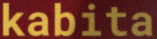
kabita